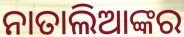
ନାତାଲିଆଙ୍କର